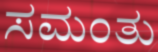
ಸಮಂತು